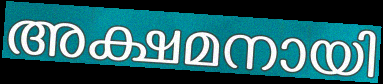
അക്ഷമനായി